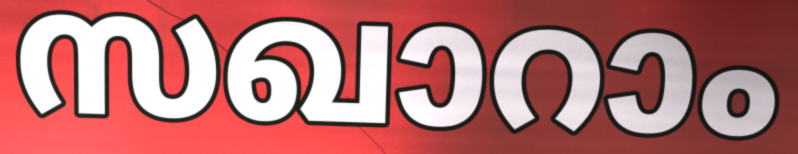
സഖാറാം